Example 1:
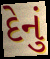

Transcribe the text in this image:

દેનું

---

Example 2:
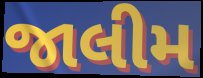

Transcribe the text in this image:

જાલીમ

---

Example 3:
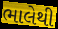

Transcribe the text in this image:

ભાલેથી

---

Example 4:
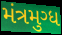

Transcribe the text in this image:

મંત્રમુગ્ધ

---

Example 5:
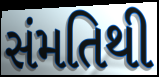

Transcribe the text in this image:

સંમતિથી